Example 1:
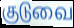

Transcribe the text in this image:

குடுவை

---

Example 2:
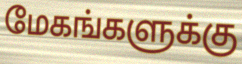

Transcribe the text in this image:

மேகங்களுக்கு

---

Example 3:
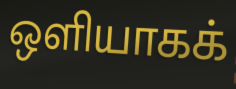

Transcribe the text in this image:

ஒளியாகக்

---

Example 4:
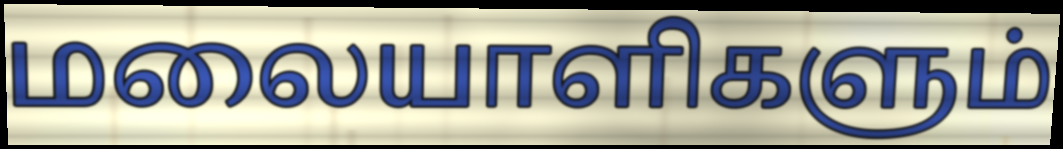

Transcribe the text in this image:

மலையாளிகளும்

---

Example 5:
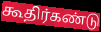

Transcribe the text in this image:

கூதிர்கண்டு